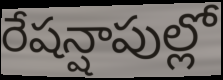
రేషన్షాపుల్లో